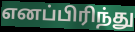
எனப்பிரிந்து